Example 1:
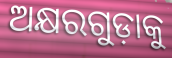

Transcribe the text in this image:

ଅକ୍ଷରଗୁଡ଼ାକୁ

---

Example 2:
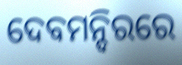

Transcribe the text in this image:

ଦେବମନ୍ଦିରରେ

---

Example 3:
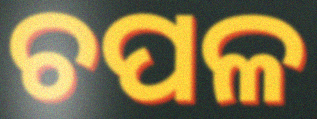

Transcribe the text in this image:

ଚପଳ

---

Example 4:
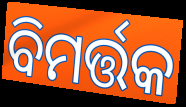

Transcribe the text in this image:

ବିମର୍ତ୍ତକ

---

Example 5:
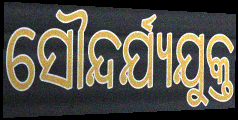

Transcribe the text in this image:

ସୌନ୍ଦର୍ଯ୍ୟଯୁକ୍ତ